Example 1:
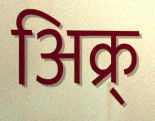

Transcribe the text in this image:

अिक्र्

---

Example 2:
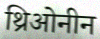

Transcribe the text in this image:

थ्रिओनीन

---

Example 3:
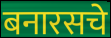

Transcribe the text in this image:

बनारसचे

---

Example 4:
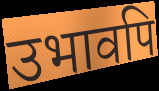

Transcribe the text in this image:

उभावपि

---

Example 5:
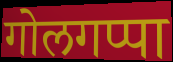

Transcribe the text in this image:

गोलगप्पा